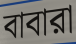
বাবারা